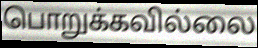
பொறுக்கவில்லை